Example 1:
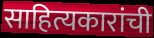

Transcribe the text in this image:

साहित्यकारांची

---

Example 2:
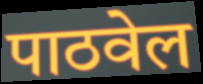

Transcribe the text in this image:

पाठवेल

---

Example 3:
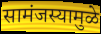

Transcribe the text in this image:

सामंजस्यामुळे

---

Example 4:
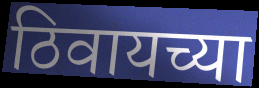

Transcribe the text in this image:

ठिवायच्या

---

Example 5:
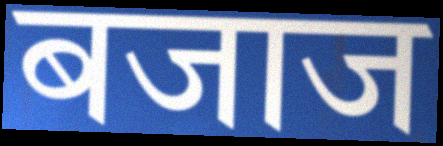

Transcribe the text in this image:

बजाज